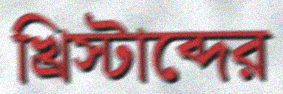
খ্রিস্টাব্দের